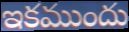
ఇకముందు